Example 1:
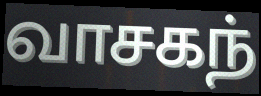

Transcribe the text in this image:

வாசகந்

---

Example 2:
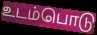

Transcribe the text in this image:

உடம்பொடு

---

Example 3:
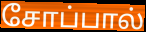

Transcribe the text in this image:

சோப்பால்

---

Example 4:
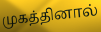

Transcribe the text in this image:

முகத்தினால்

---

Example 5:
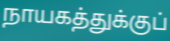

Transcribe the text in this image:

நாயகத்துக்குப்